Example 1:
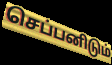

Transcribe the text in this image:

செப்பனிடும்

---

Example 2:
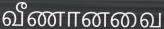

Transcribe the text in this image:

வீணானவை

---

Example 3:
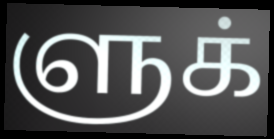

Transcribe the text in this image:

ளுக்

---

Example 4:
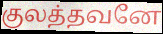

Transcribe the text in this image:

குலத்தவனே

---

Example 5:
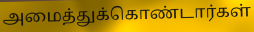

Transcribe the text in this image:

அமைத்துக்கொண்டார்கள்